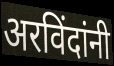
अरविंदांनी